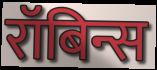
रॉबिन्स